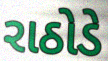
રાઠોડે